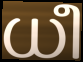
ധീ